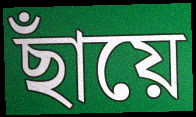
ছাঁয়ে